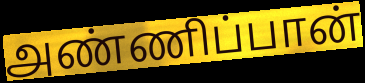
அண்ணிப்பான்